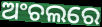
ଅଂଚଲରେ